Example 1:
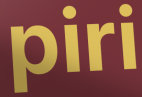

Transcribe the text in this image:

piri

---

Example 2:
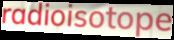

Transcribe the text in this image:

radioisotope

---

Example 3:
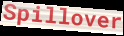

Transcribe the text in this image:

Spillover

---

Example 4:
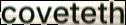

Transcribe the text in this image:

coveteth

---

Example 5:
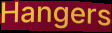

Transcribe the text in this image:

Hangers